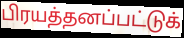
பிரயத்தனப்பட்டுக்